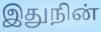
இதுநின்